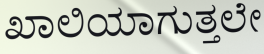
ಖಾಲಿಯಾಗುತ್ತಲೇ